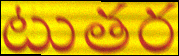
టుతర